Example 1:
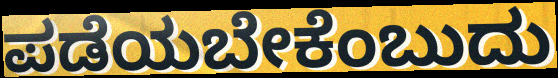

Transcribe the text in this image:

ಪಡೆಯಬೇಕೆಂಬುದು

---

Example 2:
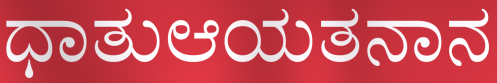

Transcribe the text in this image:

ಧಾತುಆಯತನಾನ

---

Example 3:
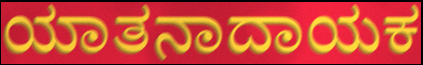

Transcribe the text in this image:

ಯಾತನಾದಾಯಕ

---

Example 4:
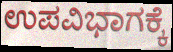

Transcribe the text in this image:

ಉಪವಿಭಾಗಕ್ಕೆ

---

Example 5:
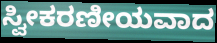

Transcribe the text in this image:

ಸ್ವೀಕರಣೀಯವಾದ